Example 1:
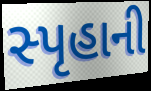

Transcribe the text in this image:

સ્પૃહાની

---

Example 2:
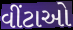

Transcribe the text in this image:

વીંટાઓ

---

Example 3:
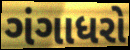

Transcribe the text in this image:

ગંગાધરો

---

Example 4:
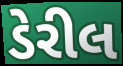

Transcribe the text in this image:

ડેરીલ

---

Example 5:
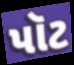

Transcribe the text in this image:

પૉટ